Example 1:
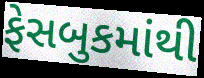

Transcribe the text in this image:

ફેસબુકમાંથી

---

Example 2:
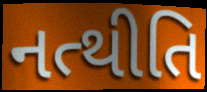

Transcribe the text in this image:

નત્થીતિ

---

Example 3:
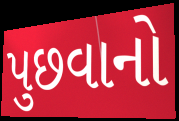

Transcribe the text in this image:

પુછવાનો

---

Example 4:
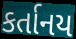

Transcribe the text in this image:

કર્તાનય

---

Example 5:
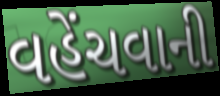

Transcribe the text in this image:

વહેંચવાની